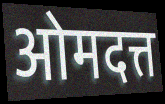
ओमदत्त